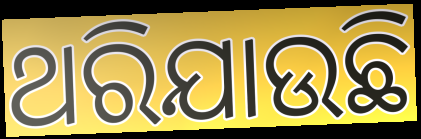
ଥରିଯାଉଛି